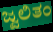
ಜ್ವಲಿತಂ